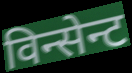
विन्सेन्ट